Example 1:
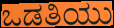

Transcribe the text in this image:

ಒಡತಿಯು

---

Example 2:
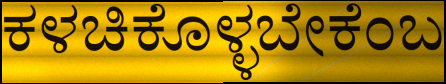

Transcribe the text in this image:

ಕಳಚಿಕೊಳ್ಳಬೇಕೆಂಬ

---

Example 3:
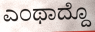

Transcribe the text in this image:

ಎಂಥಾದ್ದೊ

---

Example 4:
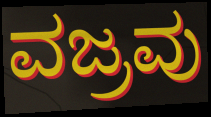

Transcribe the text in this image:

ವಜ್ರವು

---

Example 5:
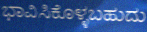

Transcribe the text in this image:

ಭಾವಿಸಿಕೊಳ್ಳಬಹುದು